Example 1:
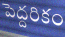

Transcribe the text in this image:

పెద్దరికం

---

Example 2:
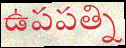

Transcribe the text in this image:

ఉపపత్ని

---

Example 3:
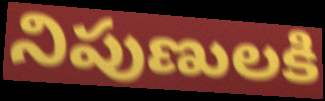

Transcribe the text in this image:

నిపుణులకి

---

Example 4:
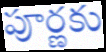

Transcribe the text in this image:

పూర్ణకు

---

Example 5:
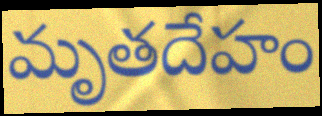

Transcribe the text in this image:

మృతదేహం